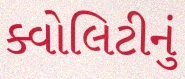
ક્વોલિટીનું